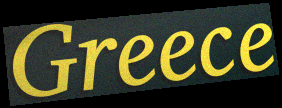
Greece